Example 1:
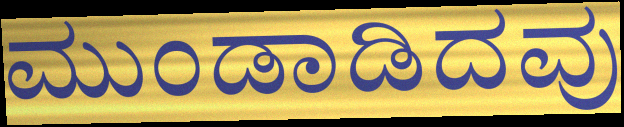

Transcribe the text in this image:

ಮುಂಡಾಡಿದವು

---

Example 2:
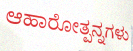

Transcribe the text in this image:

ಆಹಾರೋತ್ಪನ್ನಗಳು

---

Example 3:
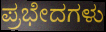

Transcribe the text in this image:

ಪ್ರಭೇದಗಳು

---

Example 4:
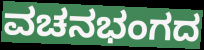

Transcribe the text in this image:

ವಚನಭಂಗದ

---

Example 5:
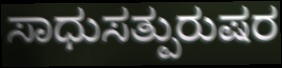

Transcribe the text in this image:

ಸಾಧುಸತ್ಪುರುಷರ